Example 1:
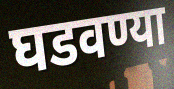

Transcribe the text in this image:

घडवण्या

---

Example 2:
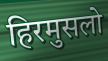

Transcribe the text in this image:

हिरमुसलो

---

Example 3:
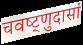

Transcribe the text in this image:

चवष्ट्णुदासां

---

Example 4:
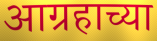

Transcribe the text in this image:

आग्रहाच्या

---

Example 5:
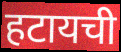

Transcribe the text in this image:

हटायची